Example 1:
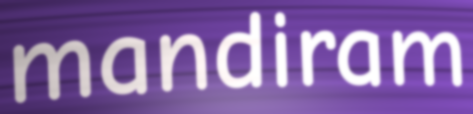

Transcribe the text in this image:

mandiram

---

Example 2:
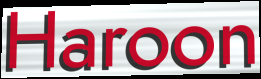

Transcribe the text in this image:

Haroon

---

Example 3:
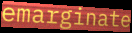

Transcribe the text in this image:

emarginate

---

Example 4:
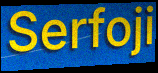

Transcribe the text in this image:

Serfoji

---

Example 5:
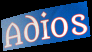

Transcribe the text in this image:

Adios